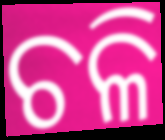
ଚଳି